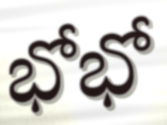
భోభో